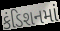
કંડિશનમાં